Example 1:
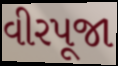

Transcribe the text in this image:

વીરપૂજા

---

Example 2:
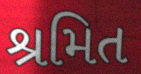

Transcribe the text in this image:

શ્રમિત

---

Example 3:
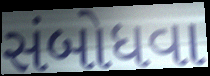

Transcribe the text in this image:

સંબોધવા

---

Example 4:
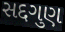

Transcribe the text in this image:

સદ્દગુણ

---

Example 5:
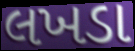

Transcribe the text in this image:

લખડા